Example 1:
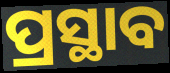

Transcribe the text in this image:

ପ୍ରସ୍ଥାବ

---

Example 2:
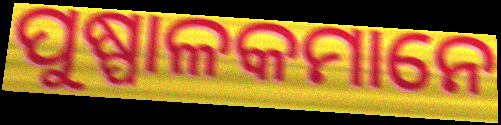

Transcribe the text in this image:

ପୁଷ୍ପାଳକମାନେ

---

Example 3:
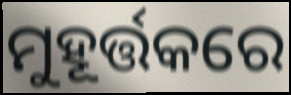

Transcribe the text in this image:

ମୁହୂର୍ତ୍ତକରେ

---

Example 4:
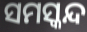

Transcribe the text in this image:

ସମସ୍କନ୍ଦ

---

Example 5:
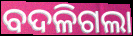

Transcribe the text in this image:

ବଦଳିଗଲା